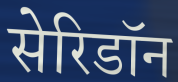
सेरिडॉन